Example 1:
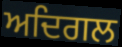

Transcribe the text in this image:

ਅਦਿਗਲ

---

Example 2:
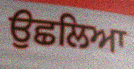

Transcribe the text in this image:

ਉਛਲਿਆ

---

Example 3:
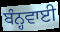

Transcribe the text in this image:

ਬੰਨ੍ਹਵਾਈ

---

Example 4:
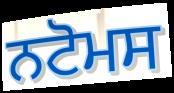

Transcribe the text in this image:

ਨਟੋਮਸ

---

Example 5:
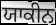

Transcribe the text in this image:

ਯਾਕੀਨ